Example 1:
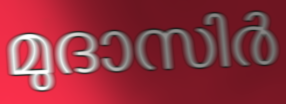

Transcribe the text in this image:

മുദാസിർ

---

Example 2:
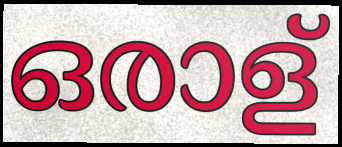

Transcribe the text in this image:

ഒരാള്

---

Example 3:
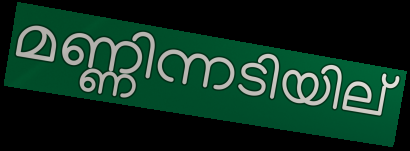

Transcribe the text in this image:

മണ്ണിന്നടിയില്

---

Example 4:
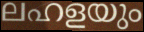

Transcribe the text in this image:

ലഹളയും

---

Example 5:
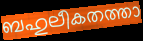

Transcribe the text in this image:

ബഹുലീകതത്താ